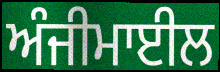
ਅੰਜੀਮਾਈਲ